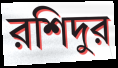
রশিদুর